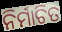
ନିର୍ମାଚିତ